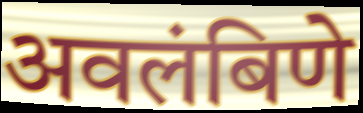
अवलंबिणे